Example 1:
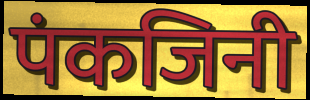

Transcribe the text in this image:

पंकजिनी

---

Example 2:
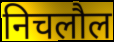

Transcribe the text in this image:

निचलौल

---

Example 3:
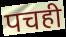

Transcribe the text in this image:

पचही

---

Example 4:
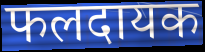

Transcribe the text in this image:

फलदायक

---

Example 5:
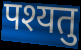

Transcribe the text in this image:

पश्यतु